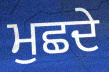
ਮੁਛਦੇ